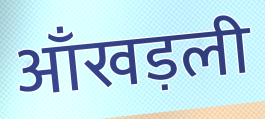
आँखड़ली